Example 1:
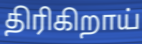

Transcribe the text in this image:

திரிகிறாய்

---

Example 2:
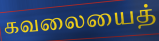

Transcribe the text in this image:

கவலையைத்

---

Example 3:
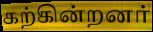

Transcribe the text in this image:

கற்கின்றனர்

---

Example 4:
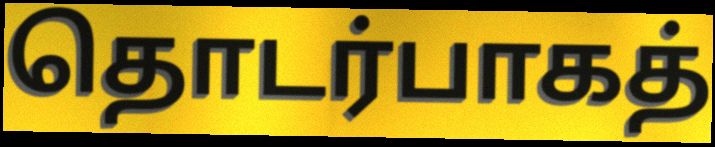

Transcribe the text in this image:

தொடர்பாகத்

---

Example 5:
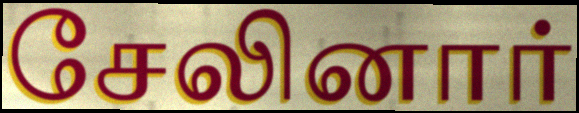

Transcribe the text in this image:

சேலினார்